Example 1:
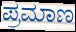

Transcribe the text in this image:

ಪ್ರಮಾಣ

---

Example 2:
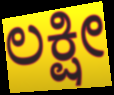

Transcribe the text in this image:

ಲಕ್ಷೀ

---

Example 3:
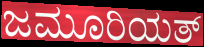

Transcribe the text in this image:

ಜಮೂರಿಯತ್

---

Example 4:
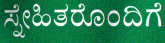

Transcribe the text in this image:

ಸ್ನೇಹಿತರೊಂದಿಗೆ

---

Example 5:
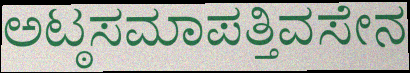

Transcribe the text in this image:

ಅಟ್ಠಸಮಾಪತ್ತಿವಸೇನ